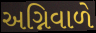
અગ્નિવાળે